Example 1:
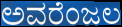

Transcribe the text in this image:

ಅವರೆಂಜಲ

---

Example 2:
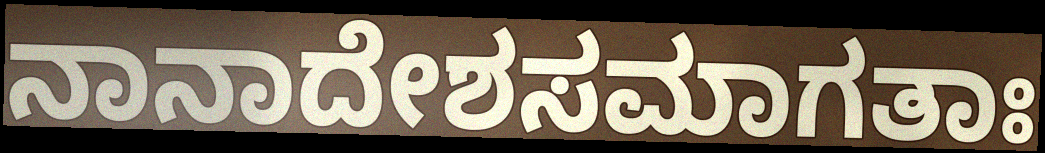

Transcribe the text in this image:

ನಾನಾದೇಶಸಮಾಗತಾಃ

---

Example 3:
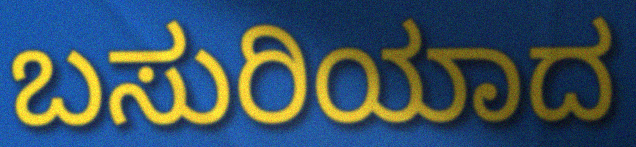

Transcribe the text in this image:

ಬಸುರಿಯಾದ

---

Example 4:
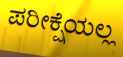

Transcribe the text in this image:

ಪರೀಕ್ಷೆಯಲ್ಲ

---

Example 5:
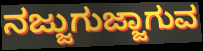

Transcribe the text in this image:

ನಜ್ಜುಗುಜ್ಜಾಗುವ